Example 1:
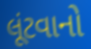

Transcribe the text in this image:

લૂંટવાનો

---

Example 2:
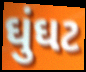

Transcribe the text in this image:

ઘુંઘટ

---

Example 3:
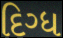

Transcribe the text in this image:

દિગ્ધ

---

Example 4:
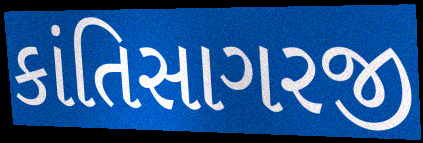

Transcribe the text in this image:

કાંતિસાગરજી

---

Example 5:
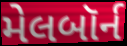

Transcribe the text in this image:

મેલબૉર્ન